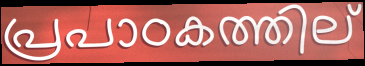
പ്രപാഠകത്തില്